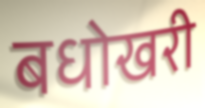
बधोखरी